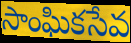
సాంఘికసేవ